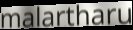
malartharu